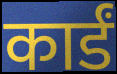
कार्डं